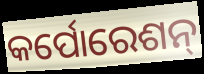
କର୍ପୋରେଶନ୍